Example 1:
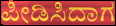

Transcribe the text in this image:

ಪೀಡಿಸಿದಾಗ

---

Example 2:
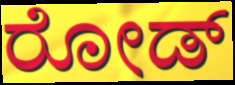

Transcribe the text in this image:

ರೋಡ್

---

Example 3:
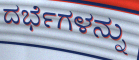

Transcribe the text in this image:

ದರ್ಭೆಗಳನ್ನು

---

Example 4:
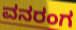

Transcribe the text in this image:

ವನರಂಗ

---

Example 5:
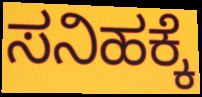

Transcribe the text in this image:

ಸನಿಹಕ್ಕೆ